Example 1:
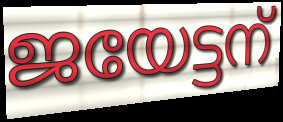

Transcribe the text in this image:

ജയേട്ടന്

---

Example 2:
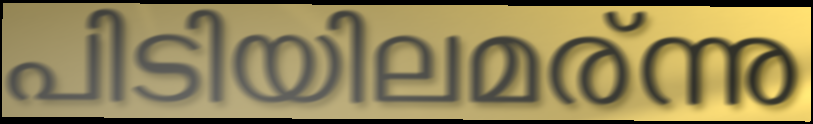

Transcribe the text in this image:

പിടിയിലമര്ന്നു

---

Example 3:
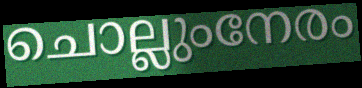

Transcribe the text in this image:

ചൊല്ലുംനേരം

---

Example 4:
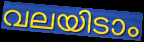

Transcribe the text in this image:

വലയിടാം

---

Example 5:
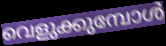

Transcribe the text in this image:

വെളുക്കുമ്പോൾ